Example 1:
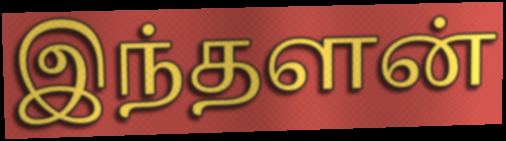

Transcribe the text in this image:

இந்தளன்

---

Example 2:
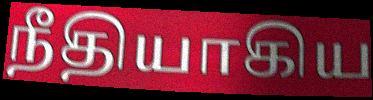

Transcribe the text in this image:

நீதியாகிய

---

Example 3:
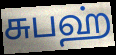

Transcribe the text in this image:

சுபஹ்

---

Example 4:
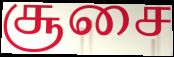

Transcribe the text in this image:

சூசை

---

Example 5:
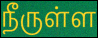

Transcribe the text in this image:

நீருள்ள